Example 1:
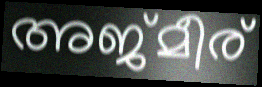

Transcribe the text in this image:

അജ്മീര്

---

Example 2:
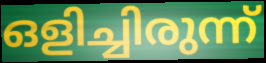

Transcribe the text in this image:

ഒളിച്ചിരുന്ന്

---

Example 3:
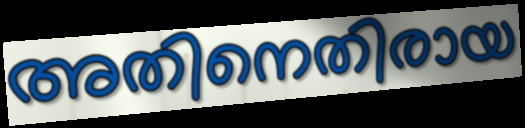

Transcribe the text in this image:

അതിനെതിരായ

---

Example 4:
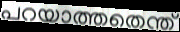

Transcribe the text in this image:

പറയാത്തതെന്ത്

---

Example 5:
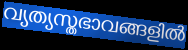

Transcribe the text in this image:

വ്യത്യസ്തഭാവങ്ങളിൽ